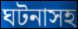
ঘটনাসহ